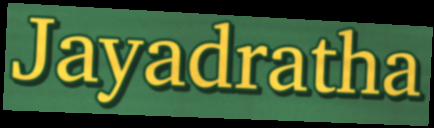
Jayadratha